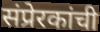
संप्रेरकांची